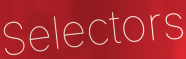
Selectors